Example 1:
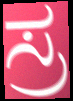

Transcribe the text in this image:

ಸ್ರ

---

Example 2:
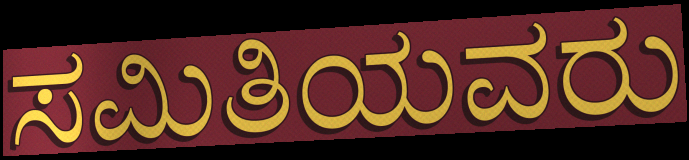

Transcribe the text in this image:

ಸಮಿತಿಯವರು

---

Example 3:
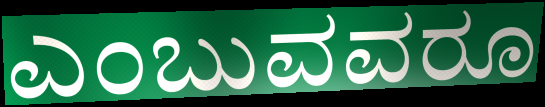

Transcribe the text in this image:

ಎಂಬುವವರೂ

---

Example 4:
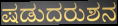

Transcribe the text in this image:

ಷಡುದರುಶನ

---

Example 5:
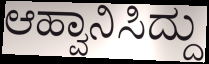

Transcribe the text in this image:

ಆಹ್ವಾನಿಸಿದ್ದು